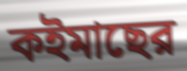
কইমাছের